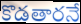
కొడతారనే